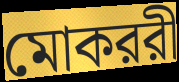
মোকররী